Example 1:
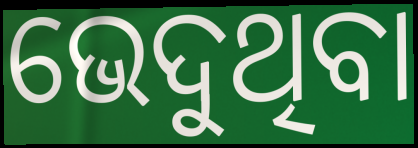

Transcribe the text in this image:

ଭେଦୁଥିବା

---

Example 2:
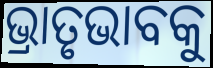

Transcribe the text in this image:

ଭ୍ରାତୃଭାବକୁ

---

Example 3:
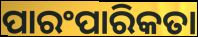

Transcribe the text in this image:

ପାରଂପାରିକତା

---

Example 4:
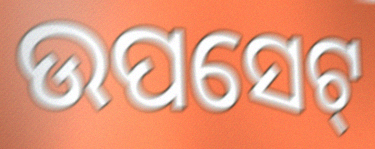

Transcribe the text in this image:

ଉପସେଟ୍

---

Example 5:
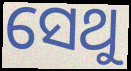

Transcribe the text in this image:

ସେଥୁ